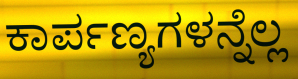
ಕಾರ್ಪಣ್ಯಗಳನ್ನೆಲ್ಲ